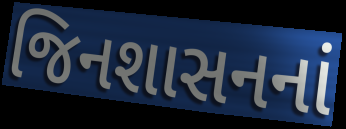
જિનશાસનનાં